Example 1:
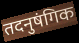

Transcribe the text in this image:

तदनुषंगिक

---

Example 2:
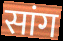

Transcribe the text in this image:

सांग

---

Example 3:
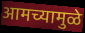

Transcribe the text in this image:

आमच्यामुळे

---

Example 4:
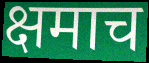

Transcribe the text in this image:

क्षमाच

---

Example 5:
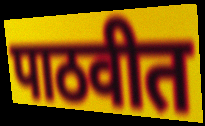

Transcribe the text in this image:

पाठवीत